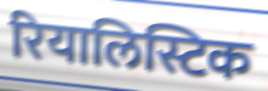
रियालिस्टिक